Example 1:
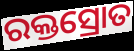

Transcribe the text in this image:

ରକ୍ତସ୍ରୋତ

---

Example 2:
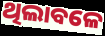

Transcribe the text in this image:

ଥିଲାବଳେ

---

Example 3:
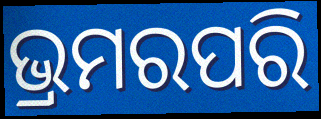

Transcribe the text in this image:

ଭ୍ରମରପରି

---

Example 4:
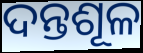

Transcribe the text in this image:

ଦନ୍ତଶୂଳ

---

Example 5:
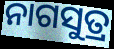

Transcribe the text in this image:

ନାଗସୁତ୍ର